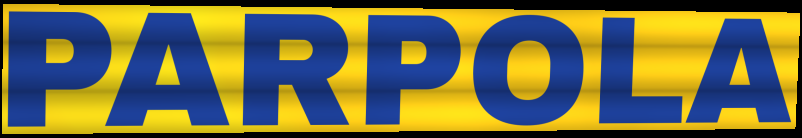
PARPOLA